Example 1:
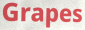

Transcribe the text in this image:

Grapes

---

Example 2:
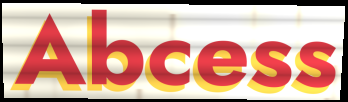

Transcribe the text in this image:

Abcess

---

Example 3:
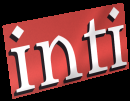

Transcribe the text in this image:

inti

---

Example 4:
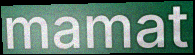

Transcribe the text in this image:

mamat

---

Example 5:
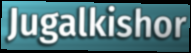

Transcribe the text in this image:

Jugalkishor